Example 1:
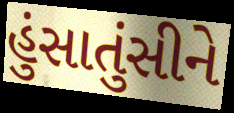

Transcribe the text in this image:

હુંસાતુંસીને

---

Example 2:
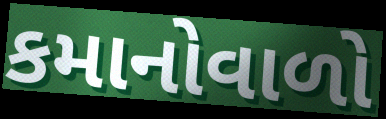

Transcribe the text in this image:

કમાનોવાળો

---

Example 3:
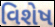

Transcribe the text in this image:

વિશેષ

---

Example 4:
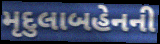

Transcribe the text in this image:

મૃદુલાબહેનની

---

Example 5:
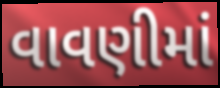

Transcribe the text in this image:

વાવણીમાં